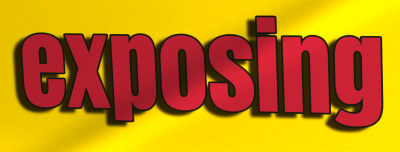
exposing